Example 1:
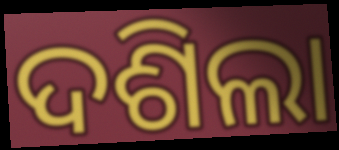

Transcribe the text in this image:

ଦଶିଲା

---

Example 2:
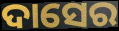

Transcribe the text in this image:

ଦାସେର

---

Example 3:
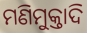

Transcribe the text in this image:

ମଣିମୁକ୍ତାଦି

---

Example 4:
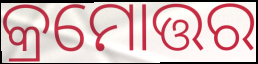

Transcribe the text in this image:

କ୍ରମୋତ୍ତର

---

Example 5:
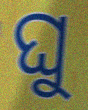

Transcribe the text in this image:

ଘୁ